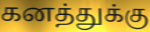
கனத்துக்கு